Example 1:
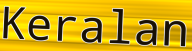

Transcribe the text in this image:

Keralan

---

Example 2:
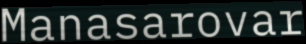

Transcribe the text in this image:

Manasarovar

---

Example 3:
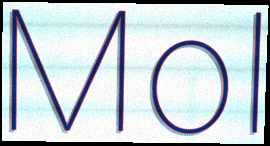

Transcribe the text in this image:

Mol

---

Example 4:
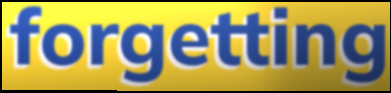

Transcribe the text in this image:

forgetting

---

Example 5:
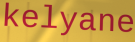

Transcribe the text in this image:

kelyane